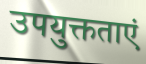
उपयुक्तताएं